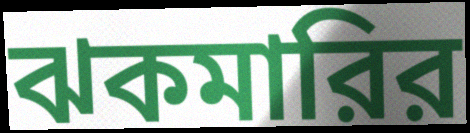
ঝকমারির